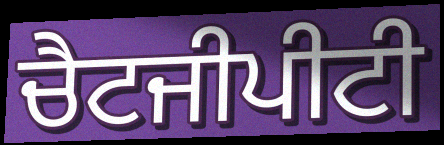
ਚੈਟਜੀਪੀਟੀ